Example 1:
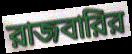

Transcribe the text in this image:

রাজবারির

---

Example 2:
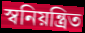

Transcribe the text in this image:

স্বনিয়ন্ত্রিত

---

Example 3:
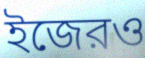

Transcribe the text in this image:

ইজেরও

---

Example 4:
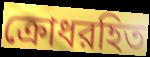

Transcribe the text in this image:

ক্রোধরহিত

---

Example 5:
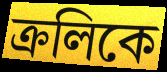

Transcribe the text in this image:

ক্রলিকে